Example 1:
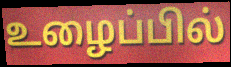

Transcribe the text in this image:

உழைப்பில்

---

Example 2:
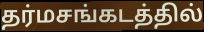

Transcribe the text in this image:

தர்மசங்கடத்தில்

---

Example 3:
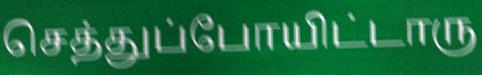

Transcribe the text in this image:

செத்துப்போயிட்டாரு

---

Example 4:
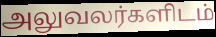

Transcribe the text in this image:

அலுவலர்களிடம்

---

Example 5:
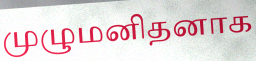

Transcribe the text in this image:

முழுமனிதனாக